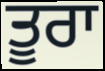
ਤੂਰਾ